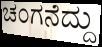
ಚಂಗನೆದ್ದು